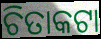
ଚିତାକଟା